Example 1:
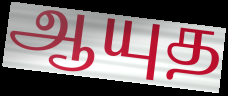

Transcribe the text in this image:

ஆயுத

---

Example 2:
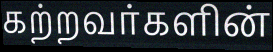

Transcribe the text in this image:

கற்றவர்களின்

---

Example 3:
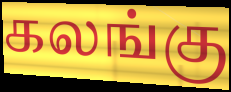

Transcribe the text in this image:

கலங்கு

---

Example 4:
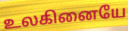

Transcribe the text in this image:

உலகினையே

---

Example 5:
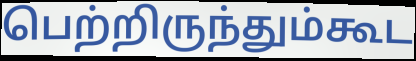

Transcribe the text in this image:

பெற்றிருந்தும்கூட